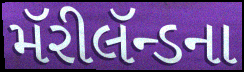
મૅરીલૅન્ડના